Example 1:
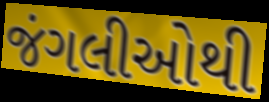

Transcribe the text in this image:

જંગલીઓથી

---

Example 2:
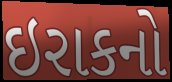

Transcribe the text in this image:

ઇરાકનો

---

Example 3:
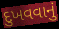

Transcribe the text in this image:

દુખવવાનું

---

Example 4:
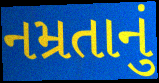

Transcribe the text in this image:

નમ્રતાનું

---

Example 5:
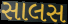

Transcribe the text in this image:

સાલસ